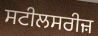
ਸਟੀਲਸਰੀਜ਼